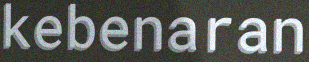
kebenaran